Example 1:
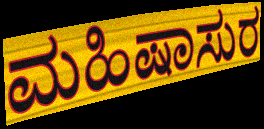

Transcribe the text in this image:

ಮಹಿಷಾಸುರ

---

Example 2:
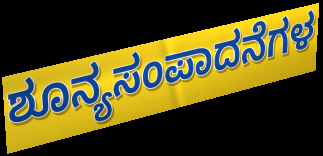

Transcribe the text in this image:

ಶೂನ್ಯಸಂಪಾದನೆಗಳ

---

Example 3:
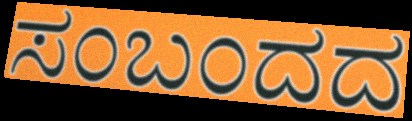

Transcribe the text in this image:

ಸಂಬಂದದ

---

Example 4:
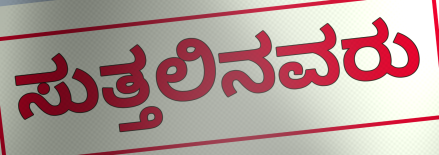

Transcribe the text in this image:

ಸುತ್ತಲಿನವರು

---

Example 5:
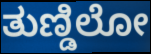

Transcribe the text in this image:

ತುಣ್ಡಿಲೋ